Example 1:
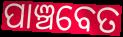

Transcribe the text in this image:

ପାଞ୍ଚବେତ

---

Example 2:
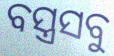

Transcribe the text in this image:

ବସ୍ତ୍ରସବୁ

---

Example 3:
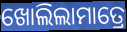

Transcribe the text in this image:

ଖୋଲିଲାମାତ୍ରେ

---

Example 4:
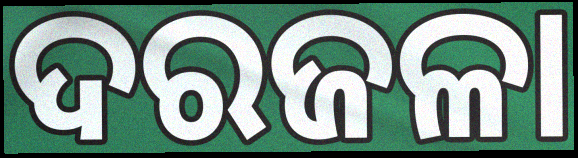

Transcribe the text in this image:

ଦରଜଳା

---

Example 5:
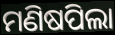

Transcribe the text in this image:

ମଣିଷପିଲା